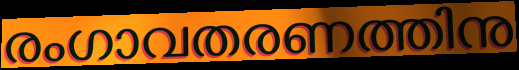
രംഗാവതരണത്തിനു